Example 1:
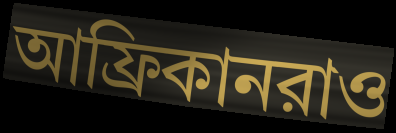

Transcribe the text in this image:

আফ্রিকানরাও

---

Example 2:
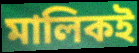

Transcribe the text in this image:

মালিকই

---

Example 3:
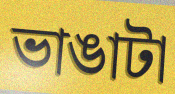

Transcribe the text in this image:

ভাঙাটা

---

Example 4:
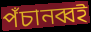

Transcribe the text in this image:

পঁচানব্বই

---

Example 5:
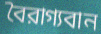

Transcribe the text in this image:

বৈরাগ্যবান